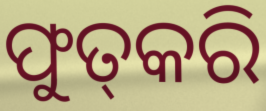
ଫୁତ୍‌କରି